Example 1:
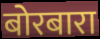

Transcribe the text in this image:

बोरबारा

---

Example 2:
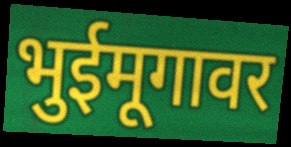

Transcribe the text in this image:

भुईमूगावर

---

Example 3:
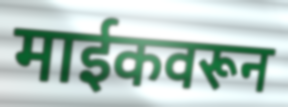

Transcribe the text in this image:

माईकवरून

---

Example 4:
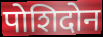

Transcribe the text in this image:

पोशिदोन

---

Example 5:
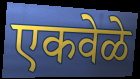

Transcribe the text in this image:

एकवेळे